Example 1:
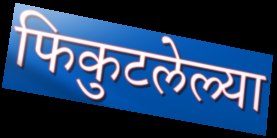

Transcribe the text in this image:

फिकुटलेल्या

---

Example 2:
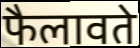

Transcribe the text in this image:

फैलावते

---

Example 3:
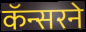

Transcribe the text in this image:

कॅन्सरने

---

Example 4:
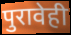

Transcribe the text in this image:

पुरावेही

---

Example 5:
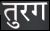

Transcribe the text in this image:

तुरग